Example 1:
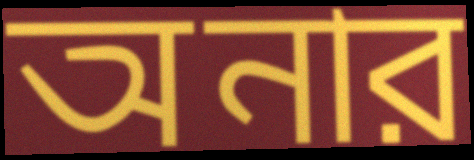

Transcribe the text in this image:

অনার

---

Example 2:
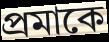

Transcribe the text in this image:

প্রমাকে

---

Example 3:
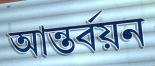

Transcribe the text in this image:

আন্তর্বয়ন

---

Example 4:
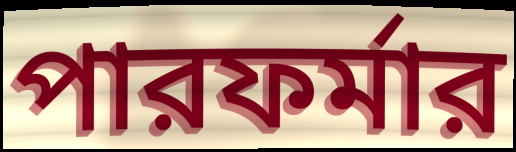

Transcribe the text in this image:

পারফর্মার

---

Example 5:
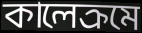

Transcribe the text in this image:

কালেক্রমে